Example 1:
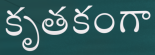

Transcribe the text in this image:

కృతకంగా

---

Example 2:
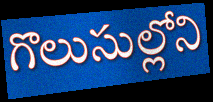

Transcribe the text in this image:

గొలుసుల్లోని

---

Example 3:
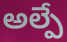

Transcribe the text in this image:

అల్పే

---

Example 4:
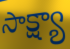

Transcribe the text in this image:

సాక్ష్యా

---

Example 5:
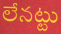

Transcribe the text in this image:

లేనట్టు